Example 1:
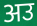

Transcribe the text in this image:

अउ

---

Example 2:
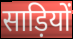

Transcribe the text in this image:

साड़ियों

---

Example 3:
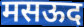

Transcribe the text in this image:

मसऊद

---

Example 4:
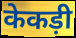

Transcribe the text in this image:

केकड़ी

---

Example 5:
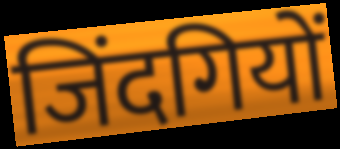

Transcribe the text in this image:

जिंदगियों